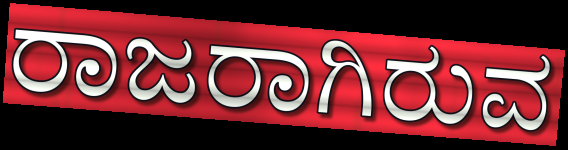
ರಾಜರಾಗಿರುವ